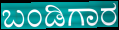
ಬಂಡಿಗಾರ